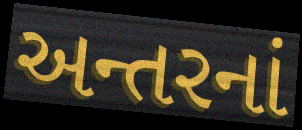
અન્તરનાં